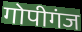
गोपीगंज